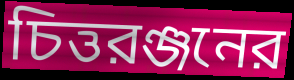
চিত্তরঞ্জনের